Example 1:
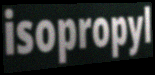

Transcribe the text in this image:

isopropyl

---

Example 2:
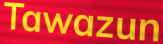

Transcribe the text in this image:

Tawazun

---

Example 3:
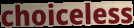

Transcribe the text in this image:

choiceless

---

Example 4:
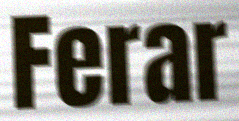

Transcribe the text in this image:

Ferar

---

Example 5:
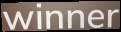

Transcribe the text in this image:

winner